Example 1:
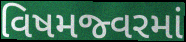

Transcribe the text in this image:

વિષમજ્વરમાં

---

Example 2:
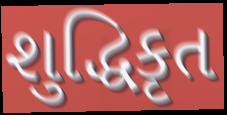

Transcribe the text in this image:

શુદ્ધિકૃત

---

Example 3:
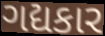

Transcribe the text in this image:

ગદ્યકાર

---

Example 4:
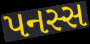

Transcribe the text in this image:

પનસ્સ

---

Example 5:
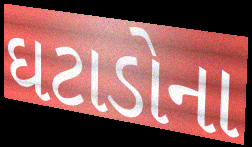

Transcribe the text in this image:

ઘટાડોના